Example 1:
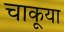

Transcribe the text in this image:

चाकूया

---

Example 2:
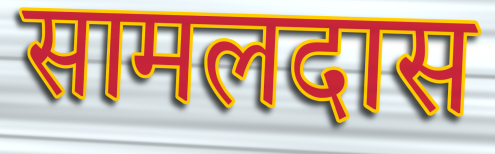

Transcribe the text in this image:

सामलदास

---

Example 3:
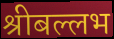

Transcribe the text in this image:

श्रीबल्लभ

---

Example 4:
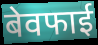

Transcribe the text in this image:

बेवफाई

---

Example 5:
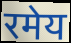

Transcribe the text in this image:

रमेय